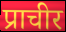
प्राचीर